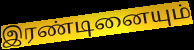
இரண்டினையும்